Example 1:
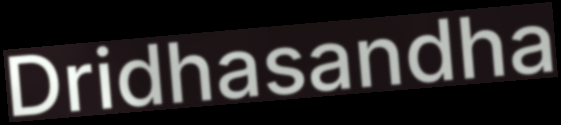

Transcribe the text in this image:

Dridhasandha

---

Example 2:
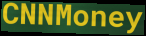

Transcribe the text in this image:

CNNMoney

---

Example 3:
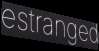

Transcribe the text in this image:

estranged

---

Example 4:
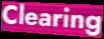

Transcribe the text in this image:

Clearing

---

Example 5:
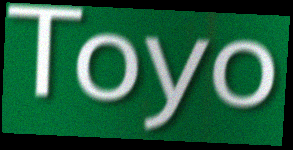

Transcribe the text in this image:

Toyo